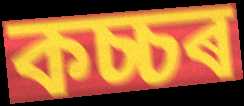
কচ্চৰ